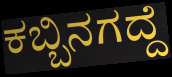
ಕಬ್ಬಿನಗದ್ದೆ